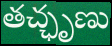
తచ్ఛృణు